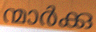
ന്മാർക്കു